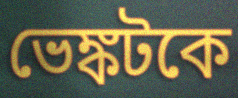
ভেঙ্কটকে